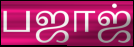
பஜாஜ்